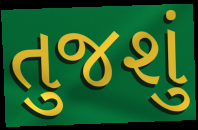
તુજશું